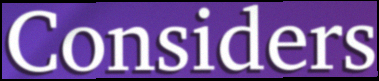
Considers